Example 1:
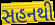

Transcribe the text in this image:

સહનથી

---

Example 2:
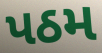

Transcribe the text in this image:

પઠમ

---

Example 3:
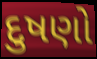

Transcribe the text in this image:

દુષણો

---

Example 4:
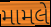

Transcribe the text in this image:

મામલે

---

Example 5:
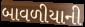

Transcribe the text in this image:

બાવળીયાની